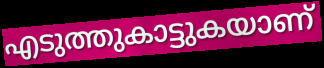
എടുത്തുകാട്ടുകയാണ്